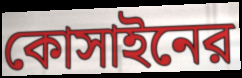
কোসাইনের